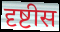
दृष्टीस